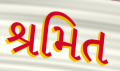
શ્રમિત